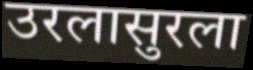
उरलासुरला